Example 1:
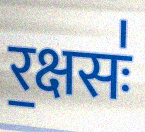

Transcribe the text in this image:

र॒क्षसः॑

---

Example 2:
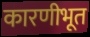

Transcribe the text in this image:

कारणीभूत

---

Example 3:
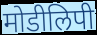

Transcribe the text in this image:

मोडीलिपी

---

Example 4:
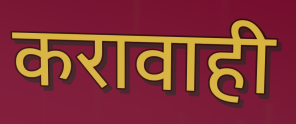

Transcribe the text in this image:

करावाही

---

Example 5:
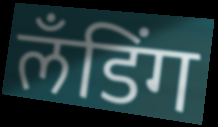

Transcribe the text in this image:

लँडिंग